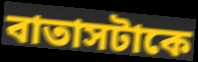
বাতাসটাকে